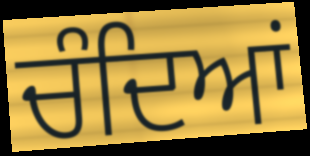
ਚੰਦਿਆਂ